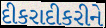
દીકરાદીકરીને